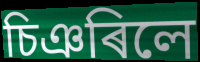
চিঞৰিলে